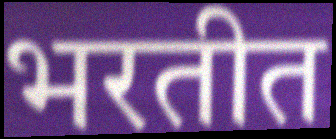
भरतीत